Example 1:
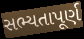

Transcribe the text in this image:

સભ્યતાપૂર્ણ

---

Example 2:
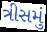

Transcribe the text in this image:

ત્રીસમું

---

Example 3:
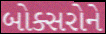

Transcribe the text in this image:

બોક્સરોને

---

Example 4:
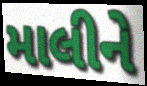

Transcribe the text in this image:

માલીને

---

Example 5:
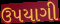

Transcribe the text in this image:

ઉપયાગી